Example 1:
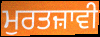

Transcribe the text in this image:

ਮੁਰਤਜ਼ਾਵੀ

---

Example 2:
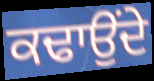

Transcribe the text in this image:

ਕਢਾਉਂਦੇ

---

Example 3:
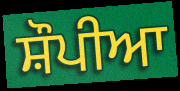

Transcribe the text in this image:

ਸ਼ੌਪੀਆ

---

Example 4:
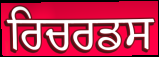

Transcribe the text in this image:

ਰਿਚਰਡਸ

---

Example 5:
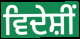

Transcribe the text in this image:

ਵਿਦੇਸ਼ੀਂ